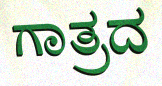
ಗಾತ್ರದ